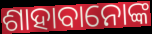
ଶାହାବାନୋଙ୍କ